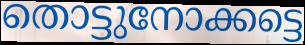
തൊട്ടുനോക്കട്ടെ